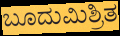
ಬೂದುಮಿಶ್ರಿತ